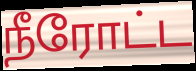
நீரோட்ட